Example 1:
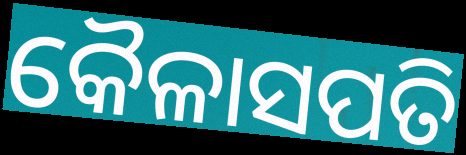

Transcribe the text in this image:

କୈଳାସପତି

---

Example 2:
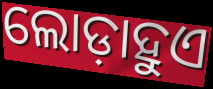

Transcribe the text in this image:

ଲୋଡ଼ାହୁଏ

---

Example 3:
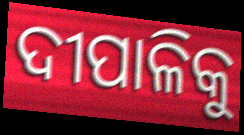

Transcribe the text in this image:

ଦୀପାଳିକୁ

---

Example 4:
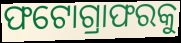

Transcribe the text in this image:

ଫଟୋଗ୍ରାଫରକୁ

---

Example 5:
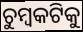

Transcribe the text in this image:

ଚୁମ୍ବକଟିକୁ